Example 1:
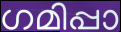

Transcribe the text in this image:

ഗമിപ്പാ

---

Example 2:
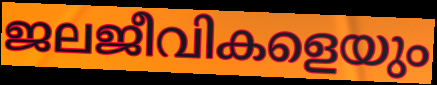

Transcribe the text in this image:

ജലജീവികളെയും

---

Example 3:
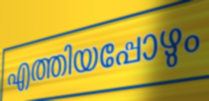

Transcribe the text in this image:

എത്തിയപ്പോഴും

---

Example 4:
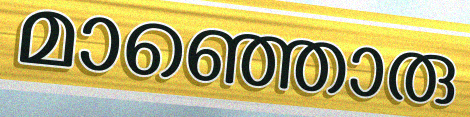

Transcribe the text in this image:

മാഞ്ഞൊരു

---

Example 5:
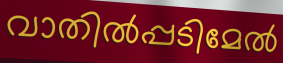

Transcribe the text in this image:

വാതിൽപ്പടിമേൽ